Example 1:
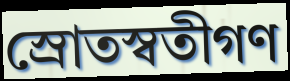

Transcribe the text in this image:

স্রোতস্বতীগণ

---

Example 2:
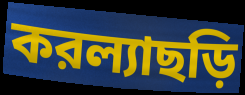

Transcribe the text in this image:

করল্যাছড়ি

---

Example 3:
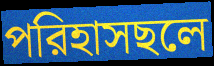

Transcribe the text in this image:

পরিহাসছলে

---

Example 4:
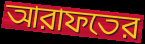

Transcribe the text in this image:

আরাফতের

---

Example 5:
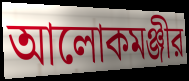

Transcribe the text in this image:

আলোকমঞ্জীর